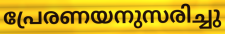
പ്രേരണയനുസരിച്ചു